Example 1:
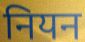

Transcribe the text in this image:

नियन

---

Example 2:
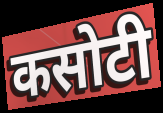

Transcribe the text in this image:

कसोटी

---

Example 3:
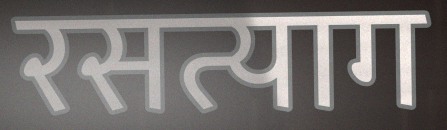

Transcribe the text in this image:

रसत्याग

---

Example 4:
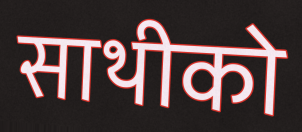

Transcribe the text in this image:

साथीको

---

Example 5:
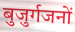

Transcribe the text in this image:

बुजुर्गजनों